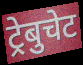
ट्रेबुचेट